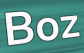
Boz